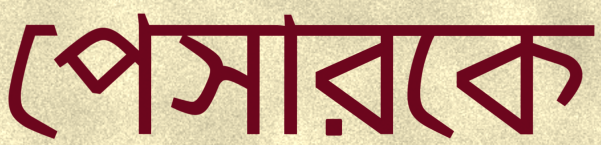
পেসারকে